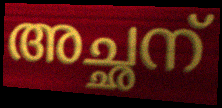
അച്ഛന്